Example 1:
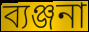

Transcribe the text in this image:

ব্যঞ্জনা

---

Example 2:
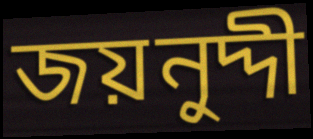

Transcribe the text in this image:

জয়নুদ্দী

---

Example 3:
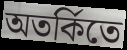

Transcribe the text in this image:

অতর্কিতে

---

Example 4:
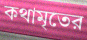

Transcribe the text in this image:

কথামৃতের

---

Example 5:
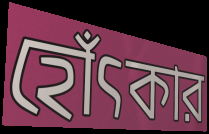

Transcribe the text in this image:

হোঁৎকার